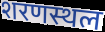
शरणस्थल